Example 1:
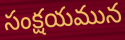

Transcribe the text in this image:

సంక్షయమున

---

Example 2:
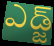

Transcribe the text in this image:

ఎడ్జ్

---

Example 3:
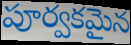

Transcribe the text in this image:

పూర్వకమైన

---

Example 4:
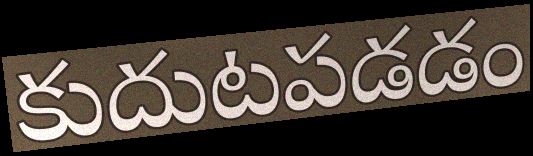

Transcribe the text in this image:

కుదుటపడడం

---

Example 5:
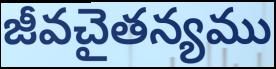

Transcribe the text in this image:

జీవచైతన్యము